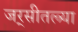
जर्सीतल्या